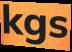
kgs